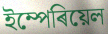
ইম্পেৰিয়েল